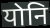
योनि